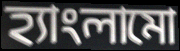
হ্যাংলামো